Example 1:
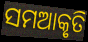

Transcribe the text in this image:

ସମଆକୃତି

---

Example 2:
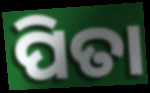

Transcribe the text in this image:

ପିତା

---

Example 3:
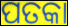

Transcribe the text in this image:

ପତକା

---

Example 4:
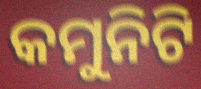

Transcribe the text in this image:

କମୁନିଟି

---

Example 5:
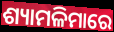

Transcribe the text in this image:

ଶ୍ୟାମଳିମାରେ